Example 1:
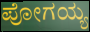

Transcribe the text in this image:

ಪೋಗಯ್ಯ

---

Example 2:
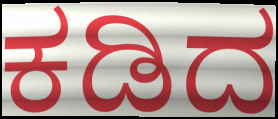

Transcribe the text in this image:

ಕಡಿದ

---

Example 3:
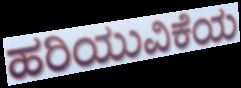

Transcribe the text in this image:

ಹರಿಯುವಿಕೆಯ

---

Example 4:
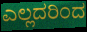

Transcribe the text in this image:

ಎಲ್ಲದರಿಂದ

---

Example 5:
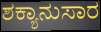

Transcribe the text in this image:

ಶಕ್ಯಾನುಸಾರ